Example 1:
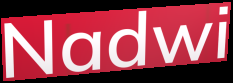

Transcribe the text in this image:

Nadwi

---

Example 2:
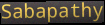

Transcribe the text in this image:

Sabapathy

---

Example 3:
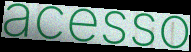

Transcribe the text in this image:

acesso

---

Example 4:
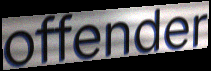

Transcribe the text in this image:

offender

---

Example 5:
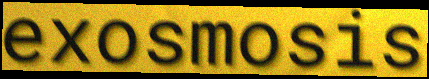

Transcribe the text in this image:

exosmosis